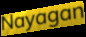
Nayagan